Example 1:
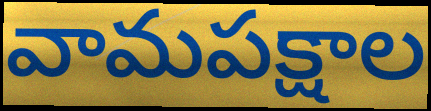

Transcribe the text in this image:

వామపక్షాల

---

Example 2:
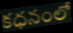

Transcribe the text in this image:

కధనంలో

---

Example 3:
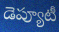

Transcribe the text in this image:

డెప్యూటీ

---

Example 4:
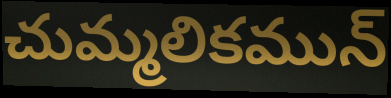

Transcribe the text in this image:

చుమ్మలికమున్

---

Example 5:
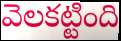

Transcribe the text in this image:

వెలకట్టింది